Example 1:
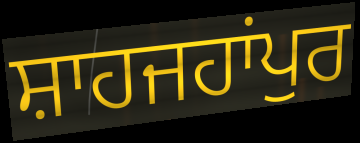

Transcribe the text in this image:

ਸ਼ਾਹਜਹਾਂਪੁਰ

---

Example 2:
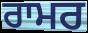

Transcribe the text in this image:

ਰਾਮਰ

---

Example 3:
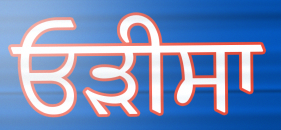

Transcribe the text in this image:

ਓੜੀਸਾ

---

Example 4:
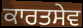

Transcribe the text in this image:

ਕਾਰਤਸੇਵ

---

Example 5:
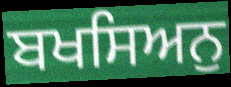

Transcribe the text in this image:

ਬਖਸਿਅਨੁ